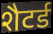
शैटर्ड